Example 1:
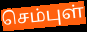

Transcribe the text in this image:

செம்புள்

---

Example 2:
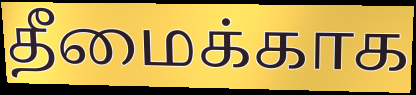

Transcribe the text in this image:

தீமைக்காக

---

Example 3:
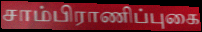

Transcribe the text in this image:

சாம்பிராணிப்புகை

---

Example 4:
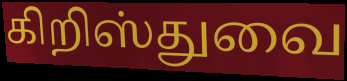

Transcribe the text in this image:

கிறிஸ்துவை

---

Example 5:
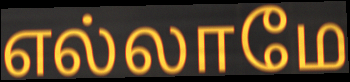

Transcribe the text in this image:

எல்லாமே